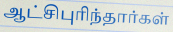
ஆட்சிபுரிந்தார்கள்